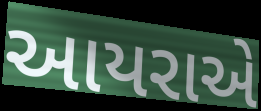
આયરાએ